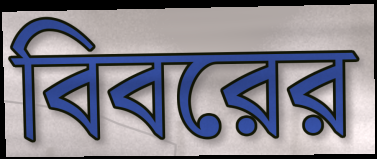
বিবরের